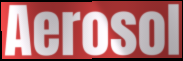
Aerosol